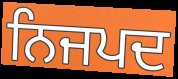
ਨਿਜਪਦ